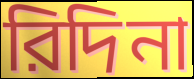
রিদিনা